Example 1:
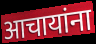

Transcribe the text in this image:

आचायांना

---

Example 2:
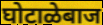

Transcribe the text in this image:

घोटाळेबाज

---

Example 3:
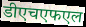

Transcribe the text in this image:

डीएचएफएल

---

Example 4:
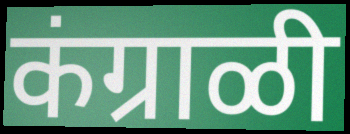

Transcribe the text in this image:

कंग्राळी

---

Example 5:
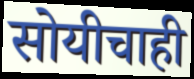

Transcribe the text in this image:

सोयीचाही